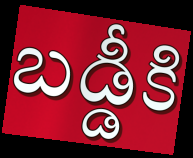
బడ్డీకి